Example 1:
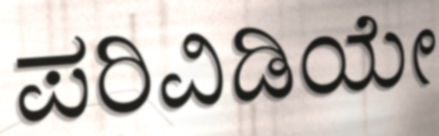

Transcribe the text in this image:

ಪರಿವಿಡಿಯೇ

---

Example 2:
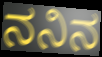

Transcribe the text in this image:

ನನಿನ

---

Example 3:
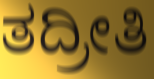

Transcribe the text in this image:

ತದ್ರೀತಿ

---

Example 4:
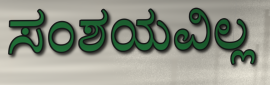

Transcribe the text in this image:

ಸಂಶಯವಿಲ್ಲ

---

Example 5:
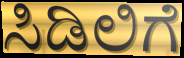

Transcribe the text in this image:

ಸಿಡಿಲಿಗೆ